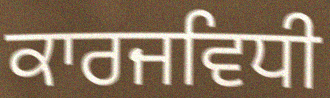
ਕਾਰਜਵਿਧੀ